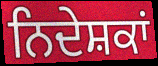
ਨਿਦੇਸ਼ਕਾਂ